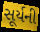
સૂર્યની